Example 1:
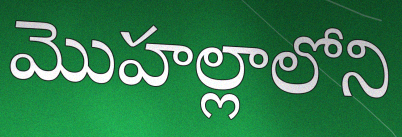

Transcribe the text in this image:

మొహల్లాలోని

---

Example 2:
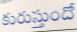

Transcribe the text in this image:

కురుస్తుందో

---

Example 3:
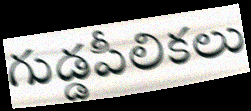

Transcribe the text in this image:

గుడ్డపీలికలు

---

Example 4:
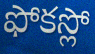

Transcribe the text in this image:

ఫోకస్లో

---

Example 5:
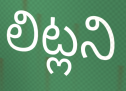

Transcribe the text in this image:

లిట్లని